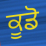
ਕੂਡੋ